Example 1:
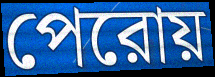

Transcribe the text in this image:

পেরোয়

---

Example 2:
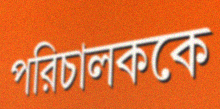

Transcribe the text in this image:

পরিচালককে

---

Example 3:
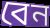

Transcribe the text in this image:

বেন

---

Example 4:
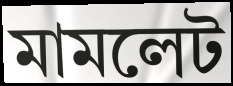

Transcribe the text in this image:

মামলেট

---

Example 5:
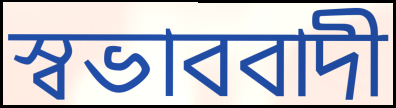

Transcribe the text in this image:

স্বভাববাদী